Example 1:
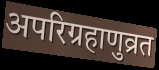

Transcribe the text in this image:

अपरिग्रहाणुव्रत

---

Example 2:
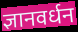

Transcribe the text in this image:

ज्ञानवर्धन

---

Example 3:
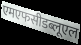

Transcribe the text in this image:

एमएफसीडब्‍लूएल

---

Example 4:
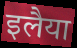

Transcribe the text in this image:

इलैया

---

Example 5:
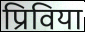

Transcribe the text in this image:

प्रिविया